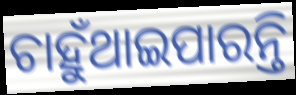
ଚାହୁଁଥାଇପାରନ୍ତି